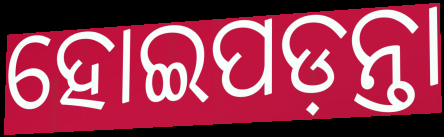
ହୋଇପଡ଼ନ୍ତା